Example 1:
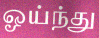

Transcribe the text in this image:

ஓய்ந்து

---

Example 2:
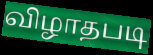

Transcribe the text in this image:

விழாதபடி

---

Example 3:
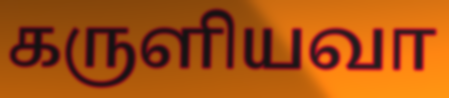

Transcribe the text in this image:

கருளியவா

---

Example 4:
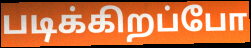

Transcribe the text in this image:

படிக்கிறப்போ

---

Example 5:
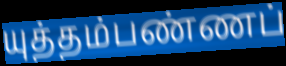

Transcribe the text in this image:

யுத்தம்பண்ணப்